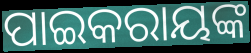
ପାଇକରାୟଙ୍କ